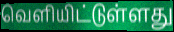
வெளியிட்டுள்ளது